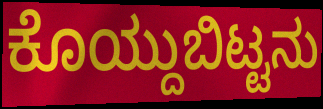
ಕೊಯ್ದುಬಿಟ್ಟನು